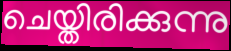
ചെയ്തിരിക്കുന്നു